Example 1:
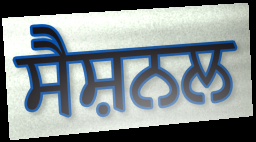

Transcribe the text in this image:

ਸੈਸ਼ਨਲ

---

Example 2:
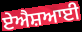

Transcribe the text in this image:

ਏਐਸ਼ਆਈ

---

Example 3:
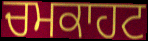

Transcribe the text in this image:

ਚਮਕਾਹਟ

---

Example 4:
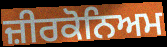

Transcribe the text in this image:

ਜ਼ੀਰਕੋਨਿਅਮ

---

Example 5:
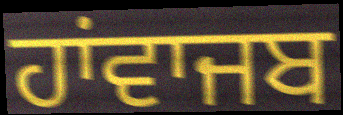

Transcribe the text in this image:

ਹਾਂਵਾਜਬ